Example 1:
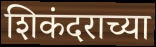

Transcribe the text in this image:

शिकंदराच्या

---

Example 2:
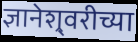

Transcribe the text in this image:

ज्ञानेश्र्वरीच्या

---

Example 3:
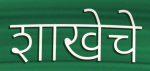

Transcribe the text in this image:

शाखेचे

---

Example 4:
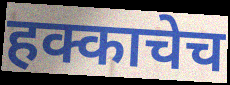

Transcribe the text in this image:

हक्काचेच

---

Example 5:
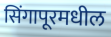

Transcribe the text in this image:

सिंगापूरमधील